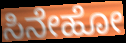
ಸಿನೇಹೋ